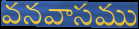
వనవాసము